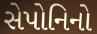
સેપોનિનો